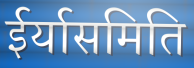
ईर्यासमिति